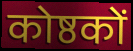
कोष्ठकों